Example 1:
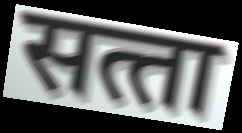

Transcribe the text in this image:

सत्‍ता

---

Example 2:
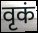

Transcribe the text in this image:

वृकं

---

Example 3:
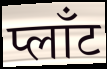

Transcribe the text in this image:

प्लाँट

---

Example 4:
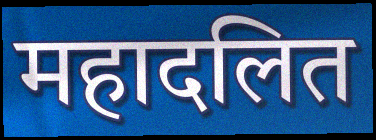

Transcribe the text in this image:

महादलित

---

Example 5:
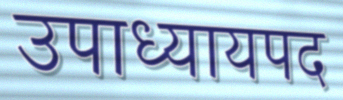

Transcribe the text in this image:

उपाध्यायपद